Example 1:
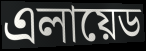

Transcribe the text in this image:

এলায়েড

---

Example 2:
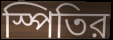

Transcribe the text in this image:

স্পিতির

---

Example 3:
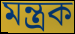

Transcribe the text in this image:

মন্ত্রক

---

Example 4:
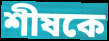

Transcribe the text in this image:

শীষকে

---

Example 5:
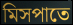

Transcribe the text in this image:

মিসপাতে